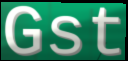
Gst